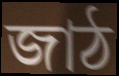
জাঠ